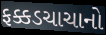
ફક્કડચાચાનો